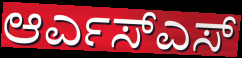
ಆರ್ಎಸ್ಎಸ್